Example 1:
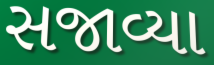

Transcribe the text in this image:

સજાવ્યા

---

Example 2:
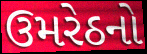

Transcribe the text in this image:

ઉમરેઠનો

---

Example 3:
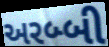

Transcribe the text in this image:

અરબ્બી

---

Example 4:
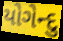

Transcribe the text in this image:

યોગેન્દુ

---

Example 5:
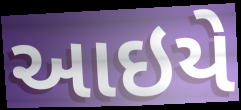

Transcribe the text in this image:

આઇયે